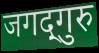
जगद्‍गुरु